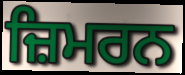
ਜ਼ਿਮਰਨ